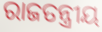
ରାଜତନ୍ତ୍ରୀୟ